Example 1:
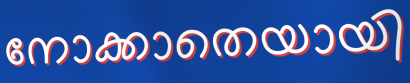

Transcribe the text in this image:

നോക്കാതെയായി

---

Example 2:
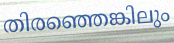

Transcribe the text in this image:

തിരഞ്ഞെങ്കിലും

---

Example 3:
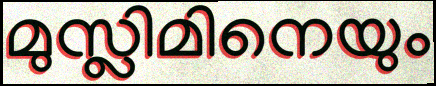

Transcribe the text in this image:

മുസ്ലിമിനെയും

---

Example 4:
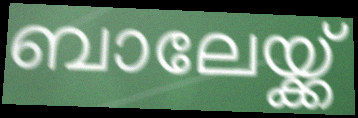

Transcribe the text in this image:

ബാലേയ്ക്ക്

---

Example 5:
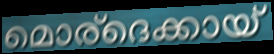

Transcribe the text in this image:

മൊര്ദെക്കായ്